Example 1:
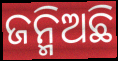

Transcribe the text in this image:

ଜନ୍ମିଅଛି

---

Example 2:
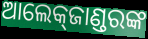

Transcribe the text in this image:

ଆଲେକ୍‍ଜାଣ୍ଡରଙ୍କ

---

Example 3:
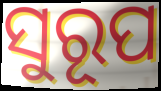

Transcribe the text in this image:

ସୁରୂପ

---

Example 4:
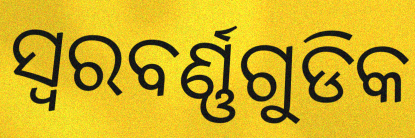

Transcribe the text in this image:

ସ୍ୱରବର୍ଣ୍ଣଗୁଡିକ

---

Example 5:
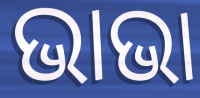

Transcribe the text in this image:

ଭାଭା